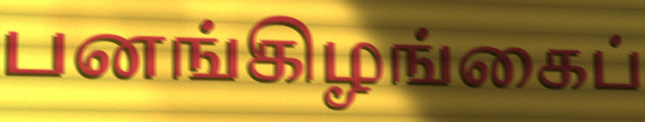
பனங்கிழங்கைப்